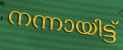
നന്നായിട്ട്